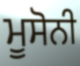
ਮੂਸੋਨੀ